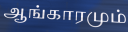
ஆங்காரமும்